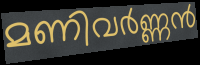
മണിവർണ്ണൻ